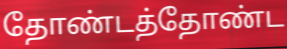
தோண்டத்தோண்ட